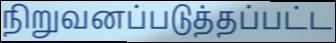
நிறுவனப்படுத்தப்பட்ட